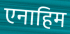
एनाहिम